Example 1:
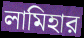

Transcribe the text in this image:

লামিহার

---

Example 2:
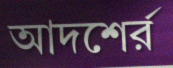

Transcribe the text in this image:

আদশের্র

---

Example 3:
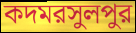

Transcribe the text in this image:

কদমরসুলপুর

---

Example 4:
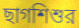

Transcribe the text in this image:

ছাগশিশুর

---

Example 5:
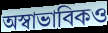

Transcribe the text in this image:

অস্বাভাবিকও